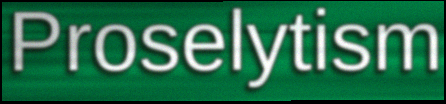
Proselytism